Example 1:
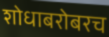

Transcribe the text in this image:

शोधाबरोबरच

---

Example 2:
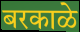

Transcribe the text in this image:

बरकाळे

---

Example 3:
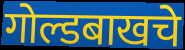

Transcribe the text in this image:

गोल्डबाखचे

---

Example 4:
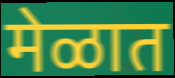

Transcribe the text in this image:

मेळात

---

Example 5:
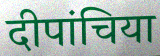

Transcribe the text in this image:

दीपांचिया